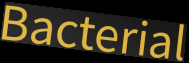
Bacterial